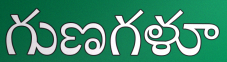
గుణగళూ